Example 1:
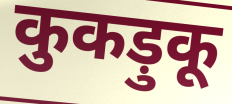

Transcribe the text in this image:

कुकड़ुकू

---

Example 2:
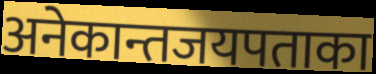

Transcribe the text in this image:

अनेकान्तजयपताका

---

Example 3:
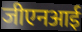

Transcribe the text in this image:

जीएनआई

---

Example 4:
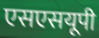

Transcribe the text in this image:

एसएसयूपी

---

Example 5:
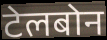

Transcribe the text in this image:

टेलबोन